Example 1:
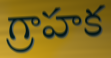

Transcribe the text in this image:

గ్రాహక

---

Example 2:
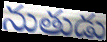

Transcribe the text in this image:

నుతుడు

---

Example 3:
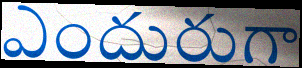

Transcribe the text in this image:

ఎందురుగా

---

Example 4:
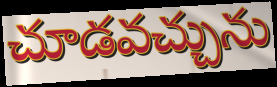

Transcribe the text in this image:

చూడవచ్చును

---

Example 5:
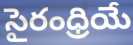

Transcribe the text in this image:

సైరంధ్రియే